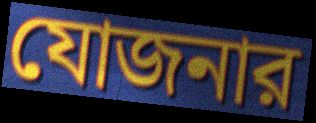
যোজনার